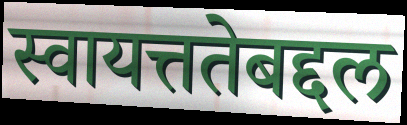
स्वायत्ततेबद्दल